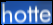
hotte